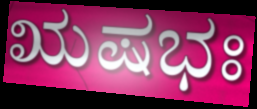
ಋಷಭಃ